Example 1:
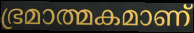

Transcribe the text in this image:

ഭ്രമാത്മകമാണ്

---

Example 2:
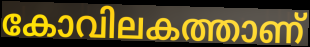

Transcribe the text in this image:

കോവിലകത്താണ്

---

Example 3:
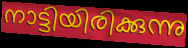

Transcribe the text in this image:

നാട്ടിയിരിക്കുന്നു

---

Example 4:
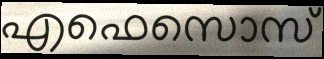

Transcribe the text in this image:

എഫെസൊസ്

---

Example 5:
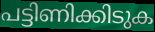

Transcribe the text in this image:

പട്ടിണിക്കിടുക